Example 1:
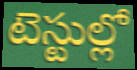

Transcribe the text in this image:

టెస్టుల్లో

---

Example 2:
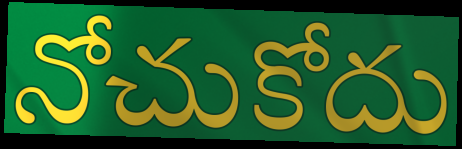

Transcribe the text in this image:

నోచుకోదు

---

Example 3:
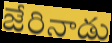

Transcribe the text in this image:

జేరినాడు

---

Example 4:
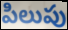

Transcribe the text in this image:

పిలుపు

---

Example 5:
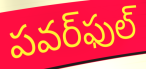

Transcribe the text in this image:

పవర్‌ఫుల్